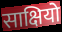
साक्षियो